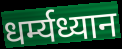
धर्म्यध्यान